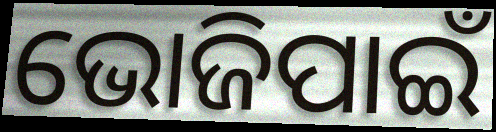
ଭୋଜିପାଇଁ